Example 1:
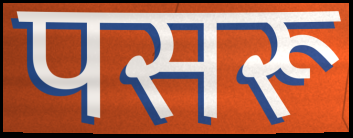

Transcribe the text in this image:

पसरू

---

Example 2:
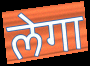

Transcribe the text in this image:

लेगा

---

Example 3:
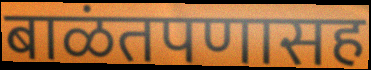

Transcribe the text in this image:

बाळंतपणासह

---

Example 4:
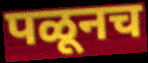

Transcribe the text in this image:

पळूनच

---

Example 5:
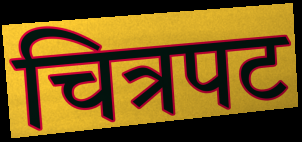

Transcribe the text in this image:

चित्रपट